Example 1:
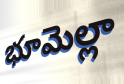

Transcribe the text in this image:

భూమెల్లా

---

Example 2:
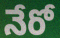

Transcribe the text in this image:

నేరో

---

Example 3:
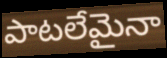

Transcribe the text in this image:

పాటలేమైనా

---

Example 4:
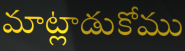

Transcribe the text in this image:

మాట్లాడుకోము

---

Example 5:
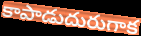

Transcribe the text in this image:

కాపాడుదురుగాక